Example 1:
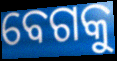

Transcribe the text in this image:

ବେଗକୁ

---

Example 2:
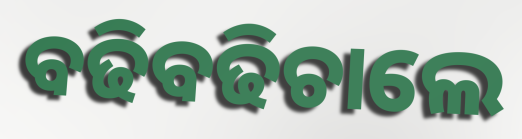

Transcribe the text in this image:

ବଢିବଢିଚାଲେ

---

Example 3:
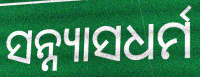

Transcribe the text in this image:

ସନ୍ନ୍ୟାସଧର୍ମ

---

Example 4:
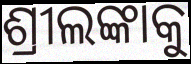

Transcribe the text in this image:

ଶ୍ରୀଲଙ୍କାକୁ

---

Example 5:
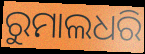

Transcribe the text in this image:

ରୁମାଲଧରି